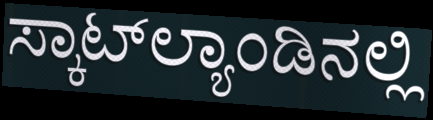
ಸ್ಕಾಟ್‌ಲ್ಯಾಂಡಿನಲ್ಲಿ